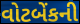
વોટબેંકની